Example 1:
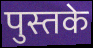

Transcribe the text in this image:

पुस्तके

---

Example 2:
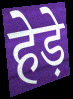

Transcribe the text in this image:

हेड़े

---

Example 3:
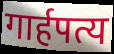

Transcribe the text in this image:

गार्हपत्य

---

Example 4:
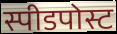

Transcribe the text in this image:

स्पीडपोस्ट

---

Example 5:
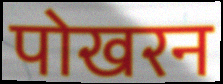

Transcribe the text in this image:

पोखरन